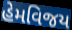
હેમવિજય